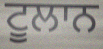
ਟੂਲਾਨ